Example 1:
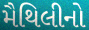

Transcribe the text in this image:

મૈથિલીનો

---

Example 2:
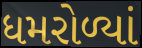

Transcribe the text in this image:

ધમરોળ્યાં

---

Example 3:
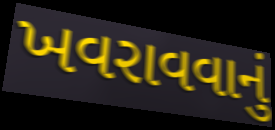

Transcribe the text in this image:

ખવરાવવાનું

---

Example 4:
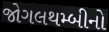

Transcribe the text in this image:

જોગલથમ્બીનો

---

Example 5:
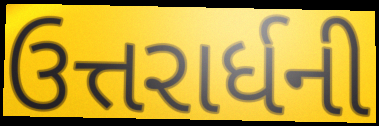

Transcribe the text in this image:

ઉત્તરાર્ધની